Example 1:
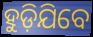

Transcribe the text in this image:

ହୁଡ଼ିଯିବେ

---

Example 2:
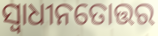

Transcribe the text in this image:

ସ୍ୱାଧୀନତୋତ୍ତର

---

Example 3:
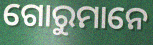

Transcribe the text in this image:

ଗୋରୁମାନେ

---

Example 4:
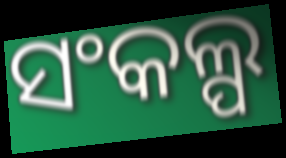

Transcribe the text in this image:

ସଂକଲ୍ପ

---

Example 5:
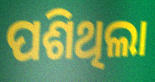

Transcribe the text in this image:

ପଶିଥିଲା